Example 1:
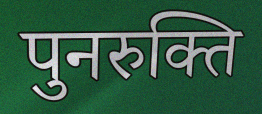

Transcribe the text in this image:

पुनरुक्ति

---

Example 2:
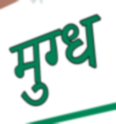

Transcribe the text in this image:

मुग्ध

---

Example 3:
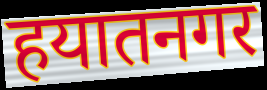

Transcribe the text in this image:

हयातनगर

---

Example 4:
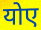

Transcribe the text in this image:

योए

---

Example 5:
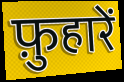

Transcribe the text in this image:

फ़ुहारें